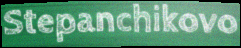
Stepanchikovo